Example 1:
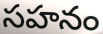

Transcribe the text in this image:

సహనం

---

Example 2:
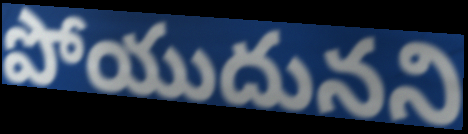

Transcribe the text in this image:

పోయుదునని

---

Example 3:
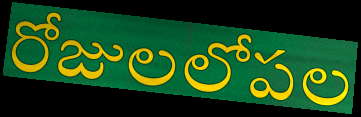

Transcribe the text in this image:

రోజులలోపల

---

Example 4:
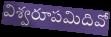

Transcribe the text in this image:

విశ్వరూపమిదివో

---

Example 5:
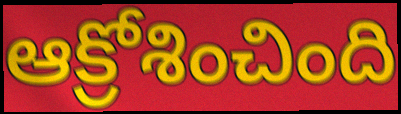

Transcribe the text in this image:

ఆక్రోశించింది